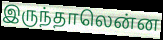
இருந்தாலென்ன